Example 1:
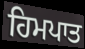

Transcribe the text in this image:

ਹਿਮਪਾਤ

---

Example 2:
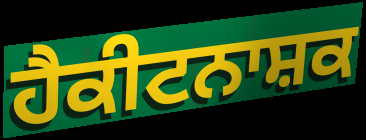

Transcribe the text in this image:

ਹੈਕੀਟਨਾਸ਼ਕ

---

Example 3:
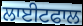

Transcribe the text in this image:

ਲਾਈਟਫਾਲ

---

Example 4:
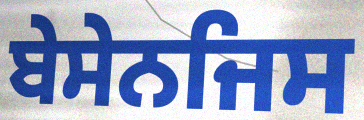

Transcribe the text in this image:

ਬੇਸੇਨਜਿਸ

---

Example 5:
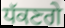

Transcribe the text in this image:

ਧੱਕਣਗੇ